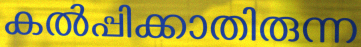
കൽപ്പിക്കാതിരുന്ന